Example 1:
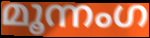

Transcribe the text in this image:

മൂന്നംഗ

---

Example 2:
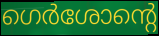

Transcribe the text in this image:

ഗെർശോന്റെ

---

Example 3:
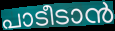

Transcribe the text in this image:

പാടീടാൻ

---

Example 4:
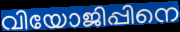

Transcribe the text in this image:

വിയോജിപ്പിനെ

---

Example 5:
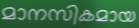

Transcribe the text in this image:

മാനസികമായ